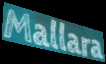
Mallara